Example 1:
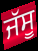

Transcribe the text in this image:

ਜੱਸੂ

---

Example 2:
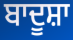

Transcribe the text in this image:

ਬਾਦੂਸ਼ਾ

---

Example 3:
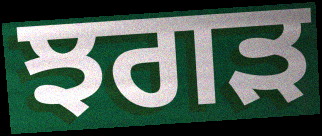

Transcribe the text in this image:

ਝਗੜ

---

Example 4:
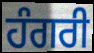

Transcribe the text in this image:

ਹੰਗਰੀ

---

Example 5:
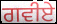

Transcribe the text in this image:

ਗਵੀਏ